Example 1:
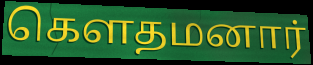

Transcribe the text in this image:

கெளதமனார்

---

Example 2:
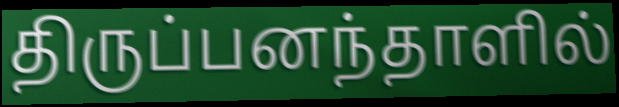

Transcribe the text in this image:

திருப்பனந்தாளில்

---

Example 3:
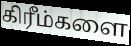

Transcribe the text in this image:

கிரீம்களை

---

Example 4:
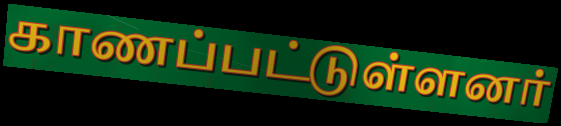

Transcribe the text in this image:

காணப்பட்டுள்ளனர்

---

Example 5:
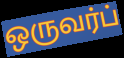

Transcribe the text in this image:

ஒருவர்ப்